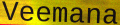
Veemana